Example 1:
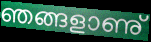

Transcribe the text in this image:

ഞങ്ങളാണു്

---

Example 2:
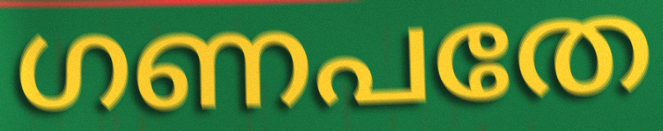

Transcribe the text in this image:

ഗണപതേ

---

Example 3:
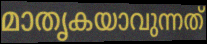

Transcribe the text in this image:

മാതൃകയാവുന്നത്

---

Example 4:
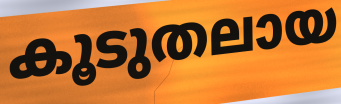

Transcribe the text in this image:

കൂടുതലായ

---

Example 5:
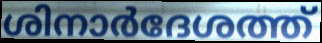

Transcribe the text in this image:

ശിനാർദേശത്ത്